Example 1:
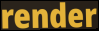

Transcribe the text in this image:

render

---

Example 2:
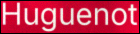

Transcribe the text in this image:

Huguenot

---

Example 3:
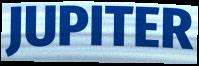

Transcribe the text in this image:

JUPITER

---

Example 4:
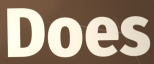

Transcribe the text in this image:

Does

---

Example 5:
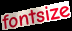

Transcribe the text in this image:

fontsize